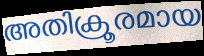
അതിക്രൂരമായ